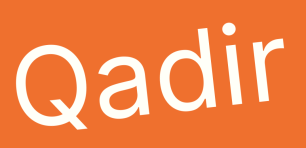
Qadir